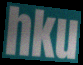
hku